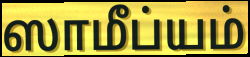
ஸாமீப்யம்